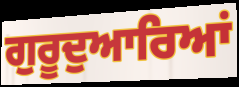
ਗੁਰੂਦੁਆਰਿਆਂ